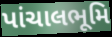
પાંચાલભૂમિ